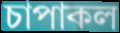
চাপাকল